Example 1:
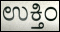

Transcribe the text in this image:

ಉಕ್ತಿಂ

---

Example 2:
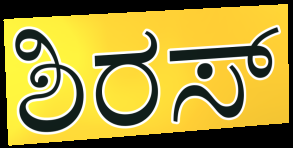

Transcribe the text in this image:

ಶಿರಸ್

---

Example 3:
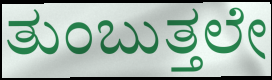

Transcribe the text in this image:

ತುಂಬುತ್ತಲೇ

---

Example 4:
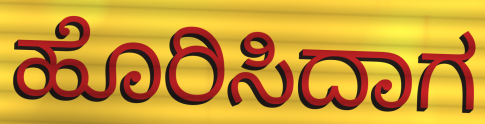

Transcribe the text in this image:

ಹೊರಿಸಿದಾಗ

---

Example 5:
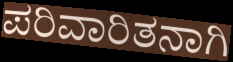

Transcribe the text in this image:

ಪರಿವಾರಿತನಾಗಿ